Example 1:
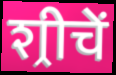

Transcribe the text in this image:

श्रीचें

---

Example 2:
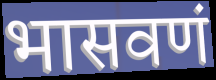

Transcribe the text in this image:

भासवणं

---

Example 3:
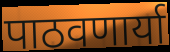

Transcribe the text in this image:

पाठवणार्या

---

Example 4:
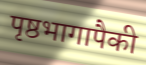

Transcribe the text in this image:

पृष्ठभागापैकी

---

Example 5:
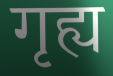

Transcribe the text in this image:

गृह्य